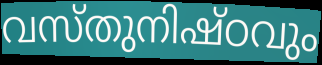
വസ്തുനിഷ്ഠവും